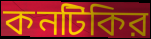
কনটিকির